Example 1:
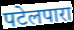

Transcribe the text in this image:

पटेलपारा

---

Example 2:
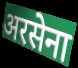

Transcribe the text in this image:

अरसेना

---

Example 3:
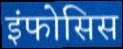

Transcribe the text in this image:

इंफोसिस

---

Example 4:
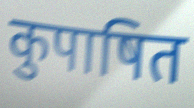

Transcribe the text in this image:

कुपाषित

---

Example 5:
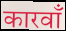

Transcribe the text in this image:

कारवाँ